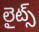
లైట్స్